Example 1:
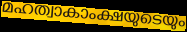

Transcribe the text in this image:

മഹത്വാകാംക്ഷയുടെയും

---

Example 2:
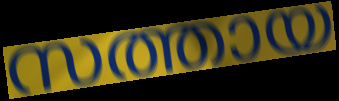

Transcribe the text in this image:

സത്തായ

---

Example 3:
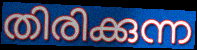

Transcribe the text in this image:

തിരിക്കുന്ന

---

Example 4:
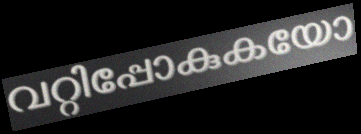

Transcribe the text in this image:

വറ്റിപ്പോകുകയോ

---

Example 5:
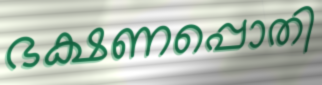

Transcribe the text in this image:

ഭക്ഷണപ്പൊതി